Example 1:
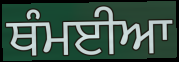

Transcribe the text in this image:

ਥੰਮਈਆ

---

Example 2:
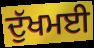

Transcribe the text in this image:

ਦੁੱਖਮਈ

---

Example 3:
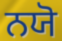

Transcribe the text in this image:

ਨਯੋ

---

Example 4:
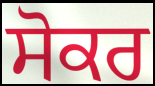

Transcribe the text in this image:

ਸੋਕਰ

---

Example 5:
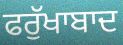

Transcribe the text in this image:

ਫਰੁੱਖਾਬਾਦ